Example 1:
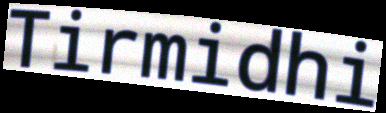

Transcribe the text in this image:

Tirmidhi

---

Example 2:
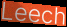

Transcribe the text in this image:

Leech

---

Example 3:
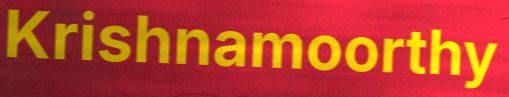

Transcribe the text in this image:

Krishnamoorthy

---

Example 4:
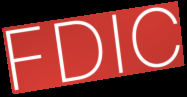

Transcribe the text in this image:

FDIC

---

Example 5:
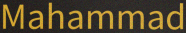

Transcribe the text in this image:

Mahammad